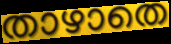
താഴാതെ